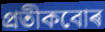
প্ৰতীকবোৰ